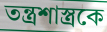
তন্ত্রশাস্ত্রকে